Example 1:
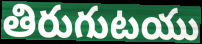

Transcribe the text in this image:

తిరుగుటయు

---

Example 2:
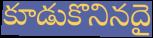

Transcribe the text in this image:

కూడుకొనినదై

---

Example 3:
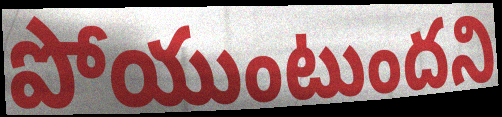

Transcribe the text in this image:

పోయుంటుందని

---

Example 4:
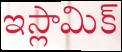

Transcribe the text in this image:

ఇస్లామిక్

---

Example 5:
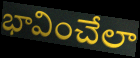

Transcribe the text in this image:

భావించేలా